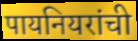
पायनियरांची